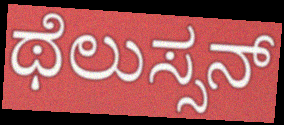
ಥೆಲುಸ್ಸನ್